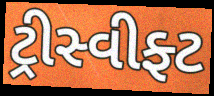
ટ્રીસ્વીફ્ટ